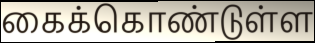
கைக்கொண்டுள்ள